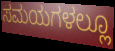
ಸಮಯಗಳಲ್ಲೂ